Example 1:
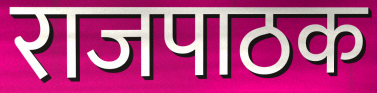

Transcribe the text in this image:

राजपाठक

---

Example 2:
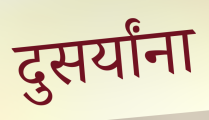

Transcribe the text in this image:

दुसर्यांना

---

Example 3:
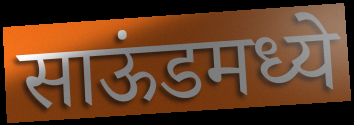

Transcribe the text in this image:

साऊंडमध्ये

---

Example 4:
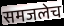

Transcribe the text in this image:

समजलेच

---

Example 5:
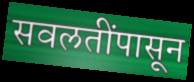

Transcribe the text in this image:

सवलतींपासून